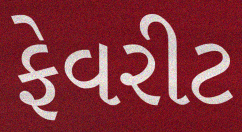
ફેવરીટ